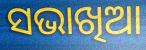
ସଭାଖିଆ